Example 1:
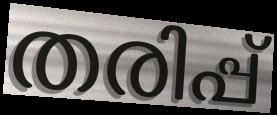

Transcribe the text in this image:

തരിപ്പ്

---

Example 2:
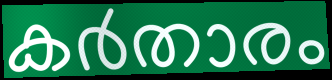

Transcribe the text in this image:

കർതാരം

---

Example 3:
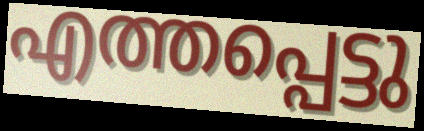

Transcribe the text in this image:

എത്തപ്പെട്ടു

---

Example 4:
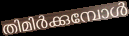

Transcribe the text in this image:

തിമിർക്കുമ്പോൾ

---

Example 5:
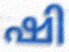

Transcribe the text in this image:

ഷി